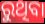
ରୁଥିବା